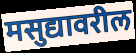
मसुद्यावरील